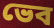
ভেব